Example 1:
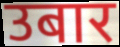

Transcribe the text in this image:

उबार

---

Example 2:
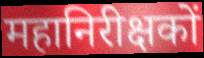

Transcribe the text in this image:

महानिरीक्षकों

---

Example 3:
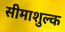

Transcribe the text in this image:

सीमाशुल्क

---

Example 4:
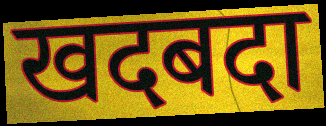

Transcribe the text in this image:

खदबदा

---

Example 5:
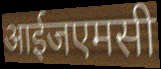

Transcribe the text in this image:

आईजएमसी